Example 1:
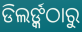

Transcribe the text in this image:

ଡିଲର୍ଙ୍କଠାରୁ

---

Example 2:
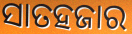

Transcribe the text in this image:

ସାତହଜାର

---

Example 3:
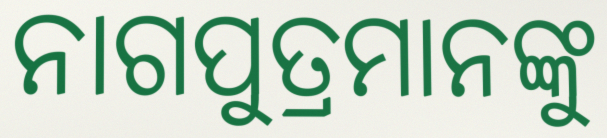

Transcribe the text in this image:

ନାଗପୁତ୍ରମାନଙ୍କୁ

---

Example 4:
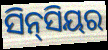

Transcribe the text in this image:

ସିନ୍‌ସିୟର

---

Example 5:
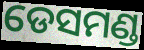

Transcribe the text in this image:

ଡେସମଣ୍ଡ